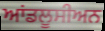
ਆਂਡਲੂਸੀਅਨ